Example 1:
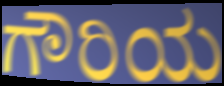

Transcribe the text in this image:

ಗೌರಿಯ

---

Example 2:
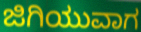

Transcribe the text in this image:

ಜಿಗಿಯುವಾಗ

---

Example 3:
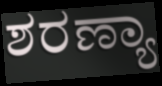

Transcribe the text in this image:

ಶರಣ್ಯಾ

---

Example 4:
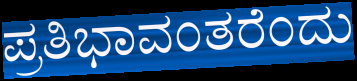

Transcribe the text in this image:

ಪ್ರತಿಭಾವಂತರೆಂದು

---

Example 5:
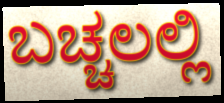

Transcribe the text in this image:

ಬಚ್ಚಲಲ್ಲಿ